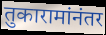
तुकारामांनंतर